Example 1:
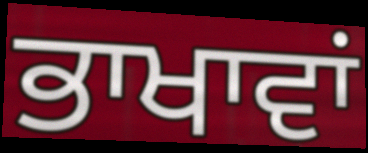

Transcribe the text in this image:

ਭਾਖਾਵਾਂ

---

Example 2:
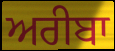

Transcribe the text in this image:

ਅਰੀਬਾ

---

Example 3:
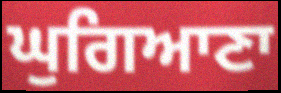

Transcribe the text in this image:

ਘੁਗਿਆਣਾ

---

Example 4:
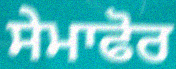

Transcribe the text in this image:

ਸੇਮਾਫੋਰ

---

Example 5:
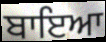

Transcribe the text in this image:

ਬਾਇਆ